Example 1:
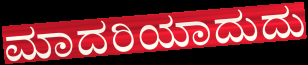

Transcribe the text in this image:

ಮಾದರಿಯಾದುದು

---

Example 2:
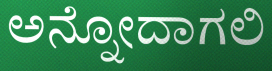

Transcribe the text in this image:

ಅನ್ನೋದಾಗಲಿ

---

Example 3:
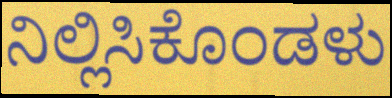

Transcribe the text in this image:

ನಿಲ್ಲಿಸಿಕೊಂಡಳು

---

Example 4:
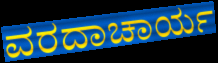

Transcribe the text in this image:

ವರದಾಚಾರ್ಯ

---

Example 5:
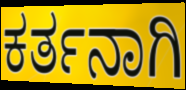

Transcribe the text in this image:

ಕರ್ತನಾಗಿ